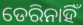
ଡେରିନାହିଁ